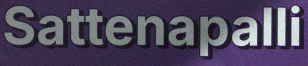
Sattenapalli